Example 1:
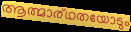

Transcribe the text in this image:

ആത്മാര്ഥതയോടും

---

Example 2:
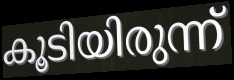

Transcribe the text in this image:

കൂടിയിരുന്ന്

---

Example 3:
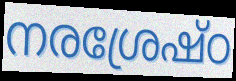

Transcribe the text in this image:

നരശ്രേഷ്ഠ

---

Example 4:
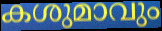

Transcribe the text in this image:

കശുമാവും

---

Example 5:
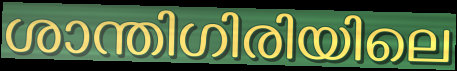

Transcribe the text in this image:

ശാന്തിഗിരിയിലെ